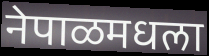
नेपाळमधला